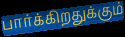
பார்க்கிறதுக்கும்